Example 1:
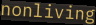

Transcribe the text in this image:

nonliving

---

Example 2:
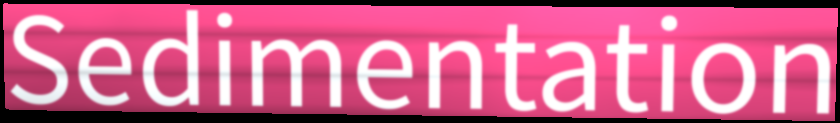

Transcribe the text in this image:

Sedimentation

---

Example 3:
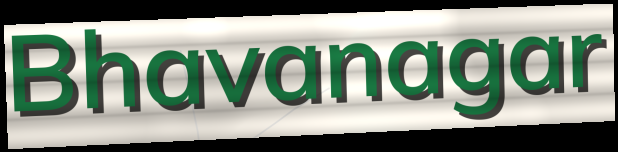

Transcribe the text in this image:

Bhavanagar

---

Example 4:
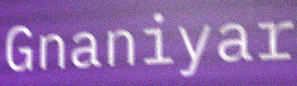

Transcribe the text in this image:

Gnaniyar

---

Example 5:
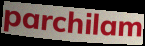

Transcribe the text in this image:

parchilam